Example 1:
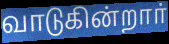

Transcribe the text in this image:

வாடுகின்றார்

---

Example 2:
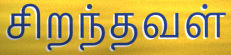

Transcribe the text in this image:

சிறந்தவள்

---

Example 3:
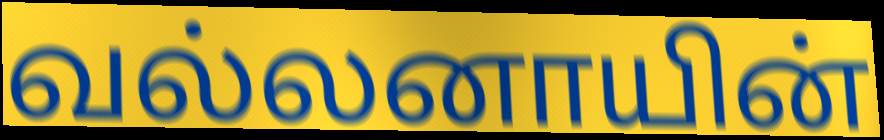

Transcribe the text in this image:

வல்லனாயின்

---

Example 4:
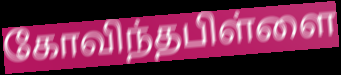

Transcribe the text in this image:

கோவிந்தபிள்ளை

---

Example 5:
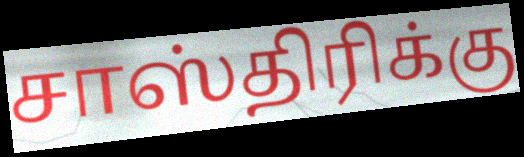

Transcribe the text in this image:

சாஸ்திரிக்கு